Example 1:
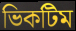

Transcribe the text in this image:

ভিকটিম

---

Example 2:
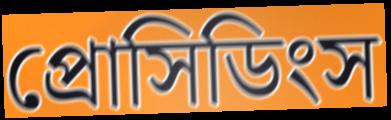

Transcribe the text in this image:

প্রোসিডিংস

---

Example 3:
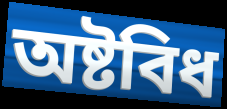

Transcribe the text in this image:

অষ্টবিধ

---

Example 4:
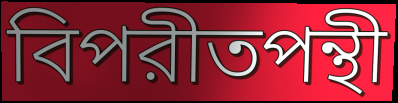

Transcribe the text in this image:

বিপরীতপন্থী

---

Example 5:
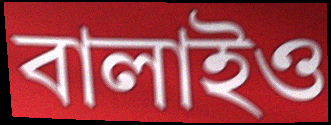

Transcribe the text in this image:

বালাইও